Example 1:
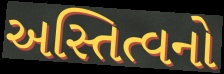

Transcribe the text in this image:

અસ્તિત્વનો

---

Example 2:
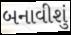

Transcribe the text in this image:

બનાવીશું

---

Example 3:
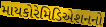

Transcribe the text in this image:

માયકોરેમિડિએશનનો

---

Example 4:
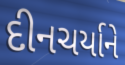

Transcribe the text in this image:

દીનચર્યાને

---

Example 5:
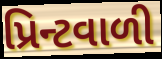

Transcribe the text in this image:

પ્રિન્ટવાળી